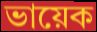
ভায়েক